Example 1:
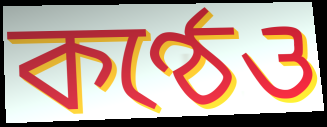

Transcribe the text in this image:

কণ্ঠেও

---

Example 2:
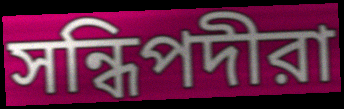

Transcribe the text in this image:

সন্ধিপদীরা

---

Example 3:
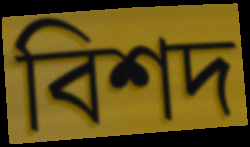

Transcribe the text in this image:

বিশদ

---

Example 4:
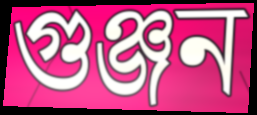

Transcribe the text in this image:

গুঞ্জন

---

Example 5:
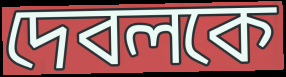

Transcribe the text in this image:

দেবলকে